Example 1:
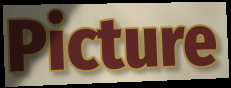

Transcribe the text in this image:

Picture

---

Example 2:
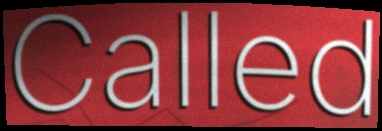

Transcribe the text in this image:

Called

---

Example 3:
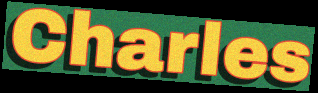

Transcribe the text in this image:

Charles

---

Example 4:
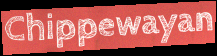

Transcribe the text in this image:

Chippewayan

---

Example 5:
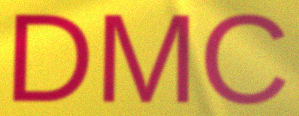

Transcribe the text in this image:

DMC